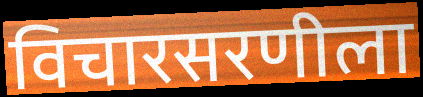
विचारसरणीला